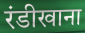
रंडीखाना